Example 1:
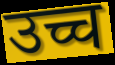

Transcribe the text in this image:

उच्‍च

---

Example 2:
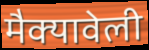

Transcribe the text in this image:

मैक्यावेली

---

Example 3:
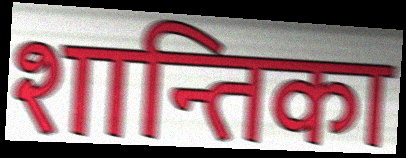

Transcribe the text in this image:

शान्तिका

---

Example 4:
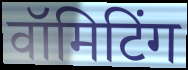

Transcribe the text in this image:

वॉमिटिंग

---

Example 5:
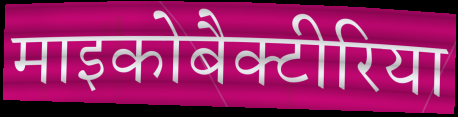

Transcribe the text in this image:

माइकोबैक्टीरिया